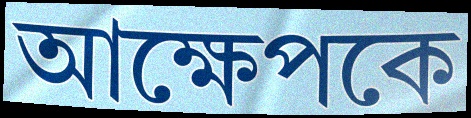
আক্ষেপকে